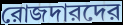
রোজদারদের